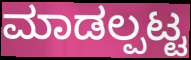
ಮಾಡಲ್ಪಟ್ಟ